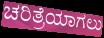
ಚರಿತ್ರೆಯಾಗಲು